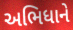
અભિધાને